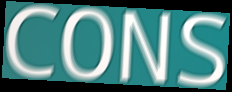
CONS